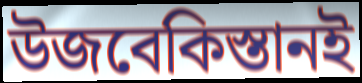
উজবেকিস্তানই